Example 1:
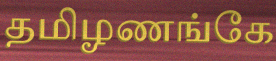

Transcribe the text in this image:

தமிழணங்கே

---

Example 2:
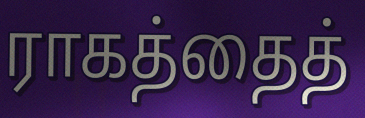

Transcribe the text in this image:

ராகத்தைத்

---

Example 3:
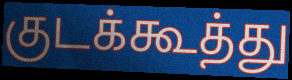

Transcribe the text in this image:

குடக்கூத்து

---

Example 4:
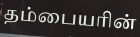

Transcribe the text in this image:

தம்பையரின்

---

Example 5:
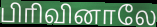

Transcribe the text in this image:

பிரிவினாலே